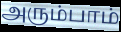
அரும்பாம்